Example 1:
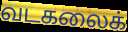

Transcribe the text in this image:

வடகலைக்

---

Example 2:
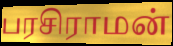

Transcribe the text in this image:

பரசிராமன்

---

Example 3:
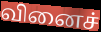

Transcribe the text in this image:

வினைச்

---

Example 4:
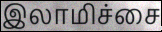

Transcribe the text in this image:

இலாமிச்சை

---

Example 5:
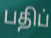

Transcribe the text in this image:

பதிப்